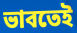
ভাবতেই